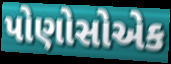
પોણોસોએક